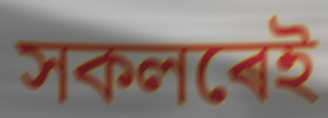
সকলৰেই